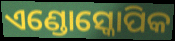
ଏଣ୍ଡୋସ୍କୋପିକ